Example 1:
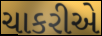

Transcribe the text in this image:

ચાકરીએ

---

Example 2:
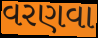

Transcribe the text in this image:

વરણવા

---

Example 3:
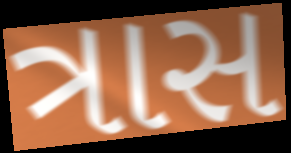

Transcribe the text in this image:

ત્રાસ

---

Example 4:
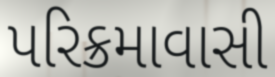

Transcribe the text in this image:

પરિક્રમાવાસી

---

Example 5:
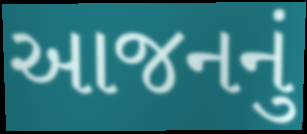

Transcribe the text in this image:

આજનનું